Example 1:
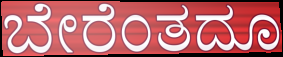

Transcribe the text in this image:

ಬೇರೆಂತದೂ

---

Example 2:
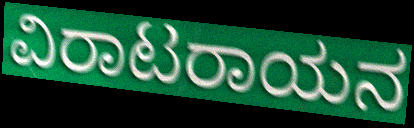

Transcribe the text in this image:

ವಿರಾಟರಾಯನ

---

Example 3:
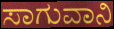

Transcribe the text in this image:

ಸಾಗುವಾನಿ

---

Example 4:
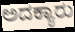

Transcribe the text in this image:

ಅದಕ್ಯಾರು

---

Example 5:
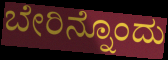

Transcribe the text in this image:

ಬೇರಿನ್ನೊಂದು